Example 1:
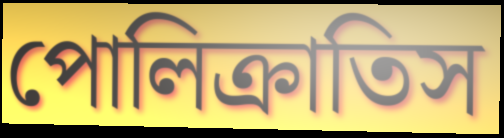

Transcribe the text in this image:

পোলিক্রাতিস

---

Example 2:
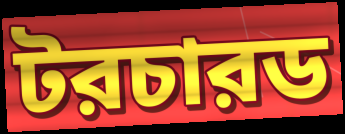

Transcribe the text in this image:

টরচারড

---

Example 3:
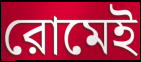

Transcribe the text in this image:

রোমেই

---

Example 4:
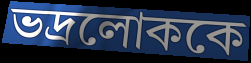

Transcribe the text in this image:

ভদ্রলোককে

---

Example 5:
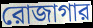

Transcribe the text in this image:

রোজাগার